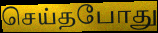
செய்தபோது